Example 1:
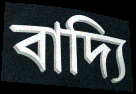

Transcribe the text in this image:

বাদ্যি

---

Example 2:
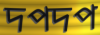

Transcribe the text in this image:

দপদপ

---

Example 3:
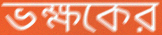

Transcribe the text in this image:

ভক্ষকের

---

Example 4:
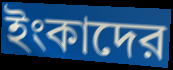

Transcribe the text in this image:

ইংকাদের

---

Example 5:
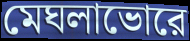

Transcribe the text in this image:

মেঘলাভোরে